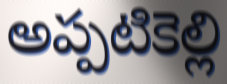
అప్పటికెల్లి